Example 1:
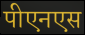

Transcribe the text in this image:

पीएनएस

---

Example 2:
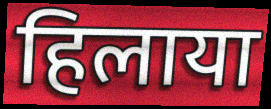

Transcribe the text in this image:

हिलाया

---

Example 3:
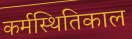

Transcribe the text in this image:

कर्मस्थितिकाल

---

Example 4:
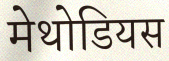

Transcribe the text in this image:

मेथोडियस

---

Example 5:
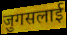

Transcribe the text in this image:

जुगसलाई